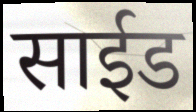
साईड